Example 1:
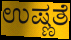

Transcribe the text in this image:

ಉಷ್ಣತೆ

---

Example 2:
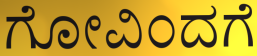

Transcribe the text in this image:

ಗೋವಿಂದಗೆ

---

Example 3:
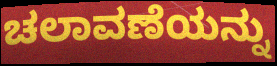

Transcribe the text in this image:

ಚಲಾವಣೆಯನ್ನು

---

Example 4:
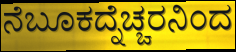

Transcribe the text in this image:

ನೆಬೂಕದ್ನೆಚ್ಚರನಿಂದ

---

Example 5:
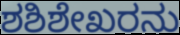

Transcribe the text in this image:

ಶಶಿಶೇಖರನು